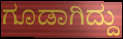
ಗೂಡಾಗಿದ್ದು